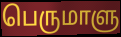
பெருமாளு